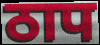
ठाप